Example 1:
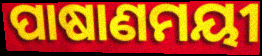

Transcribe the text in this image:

ପାଷାଣମୟୀ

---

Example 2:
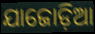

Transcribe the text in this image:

ଯାଜୋଡ଼ିଆ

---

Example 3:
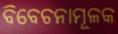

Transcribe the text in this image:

ବିବେଚନାମୂଳକ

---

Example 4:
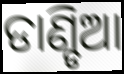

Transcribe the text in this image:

ଡାଣ୍ଡିଆ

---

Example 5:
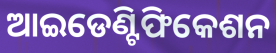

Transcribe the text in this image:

ଆଇଡେଣ୍ଟିଫିକେଶନ